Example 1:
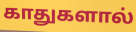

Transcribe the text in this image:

காதுகளால்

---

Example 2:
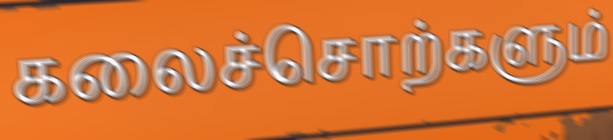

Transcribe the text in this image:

கலைச்சொற்களும்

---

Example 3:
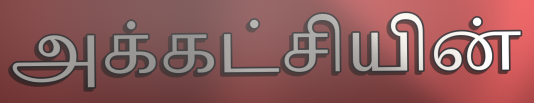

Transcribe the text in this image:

அக்கட்சியின்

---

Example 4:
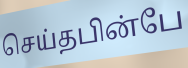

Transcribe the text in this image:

செய்தபின்பே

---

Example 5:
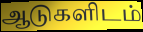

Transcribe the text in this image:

ஆடுகளிடம்